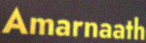
Amarnaath